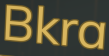
Bkra